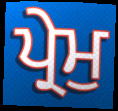
ਪ੍ਰੇਮੁ